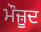
ਮੌਜ਼ੂਦ